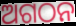
ଅଗଠନ